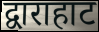
द्वाराहाट